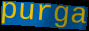
purga